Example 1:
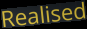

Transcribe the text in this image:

Realised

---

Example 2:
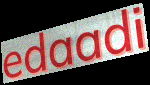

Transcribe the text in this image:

edaadi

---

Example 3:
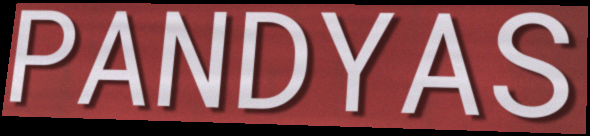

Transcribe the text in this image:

PANDYAS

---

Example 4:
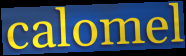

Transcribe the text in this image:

calomel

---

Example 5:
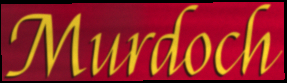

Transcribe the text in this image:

Murdoch